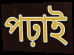
পঢ়াই